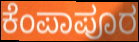
ಕೆಂಪಾಪೂರ